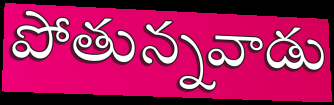
పోతున్నవాడు